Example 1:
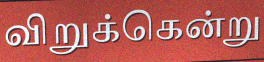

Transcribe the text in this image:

விறுக்கென்று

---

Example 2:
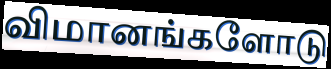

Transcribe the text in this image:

விமானங்களோடு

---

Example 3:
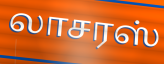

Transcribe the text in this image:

லாசரஸ்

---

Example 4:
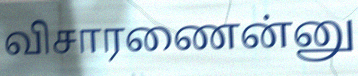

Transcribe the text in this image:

விசாரணைன்னு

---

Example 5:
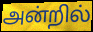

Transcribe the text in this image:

அன்றில்